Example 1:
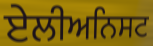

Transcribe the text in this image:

ਏਲੀਅਨਿਸਟ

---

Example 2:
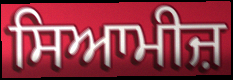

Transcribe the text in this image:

ਸਿਆਮੀਜ਼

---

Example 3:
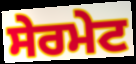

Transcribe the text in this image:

ਸੇਰਮੇਟ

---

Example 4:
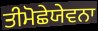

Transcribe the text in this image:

ਤੀਮੋਛੇਯੇਵਨਾ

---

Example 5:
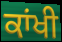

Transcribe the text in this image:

ਕਾਂਖੀ